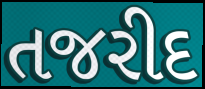
તજરીદ